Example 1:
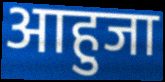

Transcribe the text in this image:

आहुजा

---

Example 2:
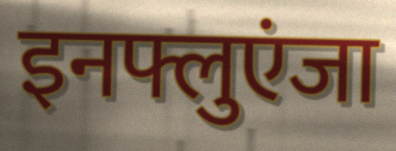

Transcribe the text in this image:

इनफ्लुएंजा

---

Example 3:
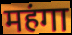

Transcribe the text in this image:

महंगा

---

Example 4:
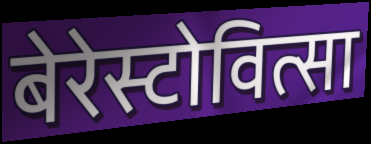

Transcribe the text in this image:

बेरेस्टोवित्सा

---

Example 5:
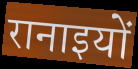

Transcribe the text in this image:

रानाइयों